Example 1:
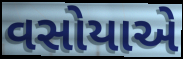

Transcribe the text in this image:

વસોયાએ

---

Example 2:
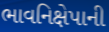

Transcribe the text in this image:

ભાવનિક્ષેપાની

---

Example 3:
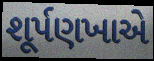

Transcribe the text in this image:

શૂર્પણખાએ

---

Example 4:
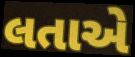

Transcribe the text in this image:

લતાએ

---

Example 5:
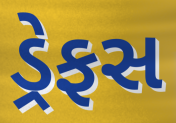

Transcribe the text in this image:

ડ્રેફસ